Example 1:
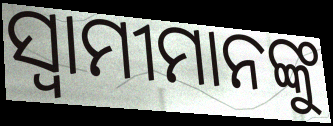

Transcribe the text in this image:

ସ୍ଵାମୀମାନଙ୍କୁ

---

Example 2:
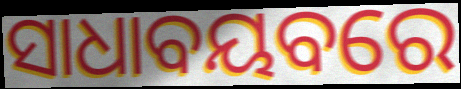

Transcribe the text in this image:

ସାଧାବୟବରେ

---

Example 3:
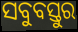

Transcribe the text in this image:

ସବୁବସ୍ତୁର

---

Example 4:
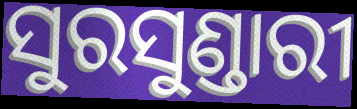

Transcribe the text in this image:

ସୁରସୁଣ୍ଡାରୀ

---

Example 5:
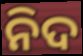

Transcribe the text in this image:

ନିଦ